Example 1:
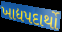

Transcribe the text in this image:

ખાદ્યપદાર્થો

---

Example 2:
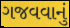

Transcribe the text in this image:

ગજવવાનું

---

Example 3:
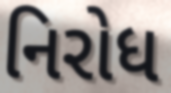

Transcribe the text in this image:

નિરોધ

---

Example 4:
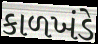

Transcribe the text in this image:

કાળખંડે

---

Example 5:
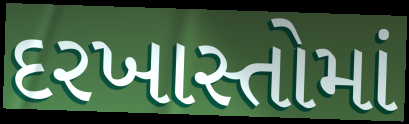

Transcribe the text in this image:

દરખાસ્તોમાં